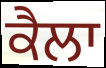
ਕੈਲਾ